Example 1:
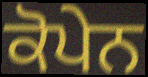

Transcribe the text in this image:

ਕੋਪੇਨ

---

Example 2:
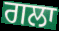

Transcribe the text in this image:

ਗਲਾ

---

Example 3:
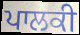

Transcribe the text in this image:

ਪਾਲਕੀ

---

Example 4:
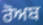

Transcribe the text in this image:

ਰੋਅਬ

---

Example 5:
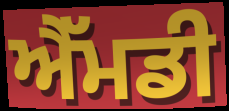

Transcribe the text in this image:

ਐੱਮਡੀ